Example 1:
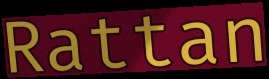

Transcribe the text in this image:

Rattan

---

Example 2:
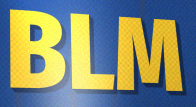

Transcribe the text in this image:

BLM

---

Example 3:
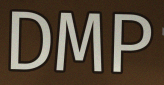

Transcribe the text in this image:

DMP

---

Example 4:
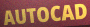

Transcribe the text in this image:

AUTOCAD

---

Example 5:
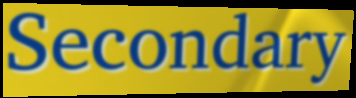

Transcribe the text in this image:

Secondary